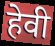
हेवी